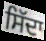
ਸਿੱਦਾ